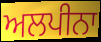
ਅਲਪੀਨਾ